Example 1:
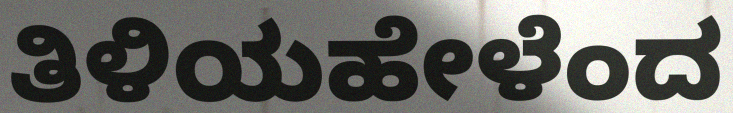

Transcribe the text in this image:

ತಿಳಿಯಹೇಳೆಂದ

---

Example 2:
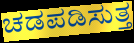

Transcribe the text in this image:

ಚಡಪಡಿಸುತ್ತ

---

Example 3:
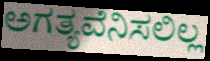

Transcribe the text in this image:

ಅಗತ್ಯವೆನಿಸಲಿಲ್ಲ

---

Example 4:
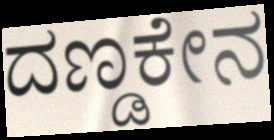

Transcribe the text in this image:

ದಣ್ಡಕೇನ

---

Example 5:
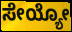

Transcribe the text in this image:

ಸೇಯ್ಯೋ